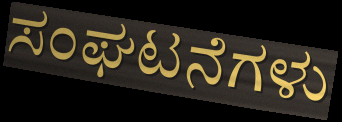
ಸಂಘಟನೆಗಳು